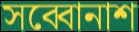
সব্বোনাশ